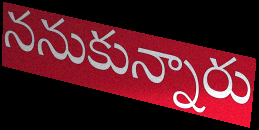
ననుకున్నారు